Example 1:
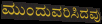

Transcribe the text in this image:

ಮುಂದುವರಿಸಿದವು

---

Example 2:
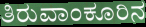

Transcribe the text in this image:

ತಿರುವಾಂಕೂರಿನ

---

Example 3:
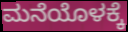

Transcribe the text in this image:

ಮನೆಯೊಳಕ್ಕೆ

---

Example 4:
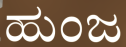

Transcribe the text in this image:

ಹುಂಜ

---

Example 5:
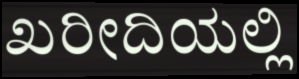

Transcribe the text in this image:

ಖರೀದಿಯಲ್ಲಿ